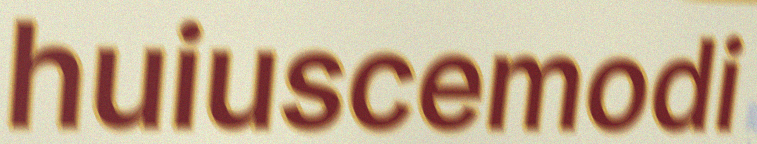
huiuscemodi